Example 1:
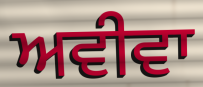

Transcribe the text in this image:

ਅਵੀਵਾ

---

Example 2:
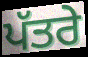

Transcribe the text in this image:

ਪੱਤਰੇ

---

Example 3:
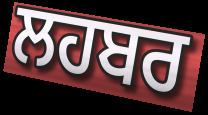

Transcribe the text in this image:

ਲਹਬਰ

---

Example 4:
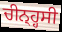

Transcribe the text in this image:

ਚੀਨ੍ਹ੍ਹਸੀ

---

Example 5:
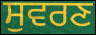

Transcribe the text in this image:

ਸੁਵਰਣ